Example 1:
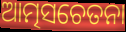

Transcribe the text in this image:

ଆତ୍ମସଚେତନା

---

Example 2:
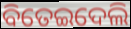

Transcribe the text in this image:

ବିତେଇଦେଲି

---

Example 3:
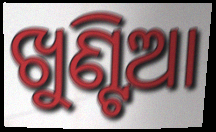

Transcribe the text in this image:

ଖୁଣ୍ଟିଆ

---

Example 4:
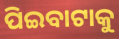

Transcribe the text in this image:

ପିଇବାଟାକୁ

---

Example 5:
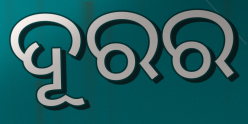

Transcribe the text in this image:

ଦୂରର